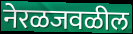
नेरळजवळील